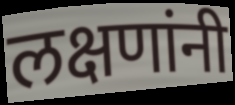
लक्षणांनी